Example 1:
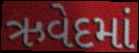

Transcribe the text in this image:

ઋવેદમાં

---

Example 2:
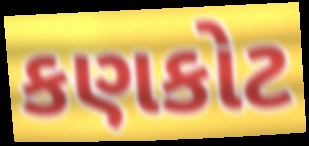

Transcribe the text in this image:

કણકોટ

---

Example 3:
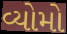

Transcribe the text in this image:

વ્યોમો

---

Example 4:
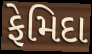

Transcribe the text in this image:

ફેમિદા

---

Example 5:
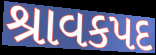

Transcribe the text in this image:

શ્રાવકપદ